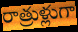
రాత్రుళ్లుగా